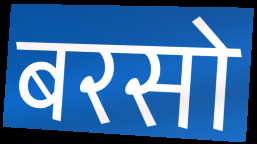
बरसो